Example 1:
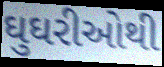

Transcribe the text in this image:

ઘુઘરીઓથી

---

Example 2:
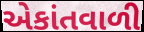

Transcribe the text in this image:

એકાંતવાળી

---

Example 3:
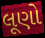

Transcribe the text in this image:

લૂણો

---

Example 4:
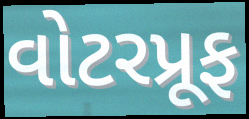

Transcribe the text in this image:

વોટરપ્રૂફ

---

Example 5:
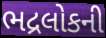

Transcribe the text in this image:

ભદ્રલોકની